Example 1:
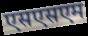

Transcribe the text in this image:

एसएसएम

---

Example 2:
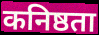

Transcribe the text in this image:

कनिष्ठता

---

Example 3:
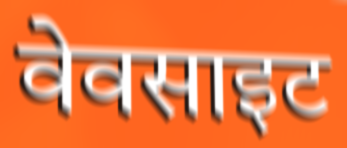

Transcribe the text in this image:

वेवसाइट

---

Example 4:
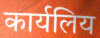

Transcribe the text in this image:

कार्यलिय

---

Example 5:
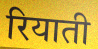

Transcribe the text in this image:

रियाती